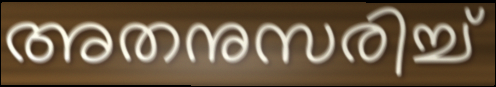
അതനുസരിച്ച്